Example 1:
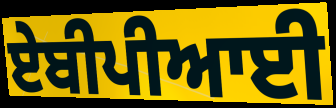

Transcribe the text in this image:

ਏਬੀਪੀਆਈ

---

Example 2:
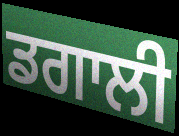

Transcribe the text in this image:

ਡਗਾਲੀ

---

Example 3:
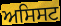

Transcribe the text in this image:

ਅਸਿਸਟ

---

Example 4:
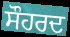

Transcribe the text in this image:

ਸੌਹਰਦ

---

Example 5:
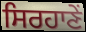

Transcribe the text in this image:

ਸਿਰਹਾਣੇਂ